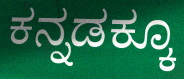
ಕನ್ನಡಕ್ಕೂ